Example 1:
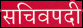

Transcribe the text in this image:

सचिवपदी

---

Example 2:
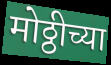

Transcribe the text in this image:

मोठ्ठीच्या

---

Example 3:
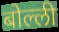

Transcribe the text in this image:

बोल्ली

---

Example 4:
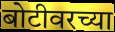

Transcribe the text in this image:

बोटीवरच्या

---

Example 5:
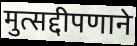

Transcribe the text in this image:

मुत्सद्दीपणाने